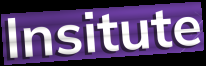
Insitute